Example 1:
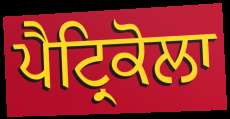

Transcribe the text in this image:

ਪੈਟ੍ਰਿਕੋਲਾ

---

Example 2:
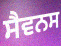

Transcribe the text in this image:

ਸੈਵਨਸ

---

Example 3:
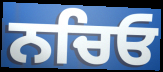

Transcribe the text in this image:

ਨਚਿਓ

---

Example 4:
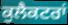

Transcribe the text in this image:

ਕੁਲੈਕਟਰਾਂ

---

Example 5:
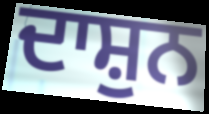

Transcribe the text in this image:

ਦਾਸ਼ੁਨ